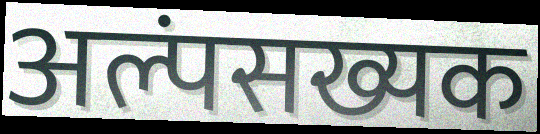
अल्पंसख्यक